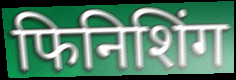
फिनिशिंग